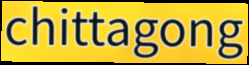
chittagong